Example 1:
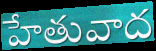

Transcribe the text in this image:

హేతువాద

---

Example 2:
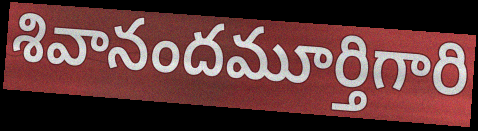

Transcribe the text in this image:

శివానందమూర్తిగారి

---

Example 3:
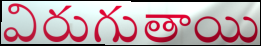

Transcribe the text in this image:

విరుగుతాయి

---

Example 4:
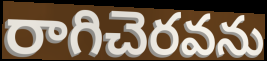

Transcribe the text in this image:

రాగిచెరవను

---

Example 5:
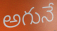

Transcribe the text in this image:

అగునే